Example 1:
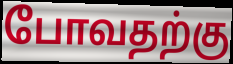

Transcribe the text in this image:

போவதற்கு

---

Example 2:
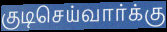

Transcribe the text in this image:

குடிசெய்வார்க்கு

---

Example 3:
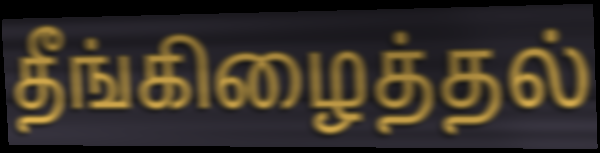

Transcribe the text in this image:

தீங்கிழைத்தல்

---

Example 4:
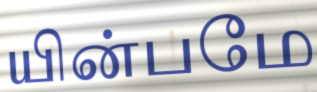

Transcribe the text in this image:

யின்பமே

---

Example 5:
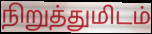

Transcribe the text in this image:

நிறுத்துமிடம்